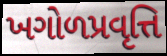
ખગોળપ્રવૃત્તિ